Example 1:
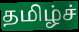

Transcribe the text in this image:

தமிழ்ச்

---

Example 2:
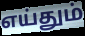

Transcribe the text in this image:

எய்தும்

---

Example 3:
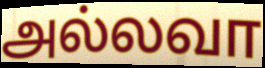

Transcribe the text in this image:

அல்லவா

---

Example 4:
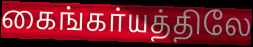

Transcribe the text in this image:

கைங்கர்யத்திலே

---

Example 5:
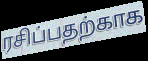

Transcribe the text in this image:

ரசிப்பதற்காக